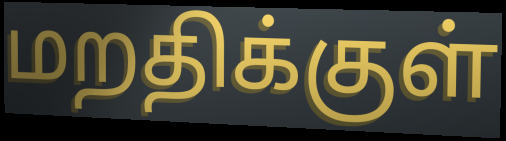
மறதிக்குள்